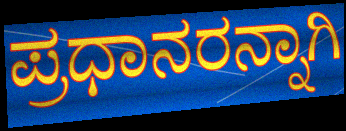
ಪ್ರಧಾನರನ್ನಾಗಿ